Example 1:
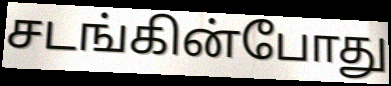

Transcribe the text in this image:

சடங்கின்போது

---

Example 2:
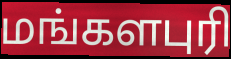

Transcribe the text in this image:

மங்களபுரி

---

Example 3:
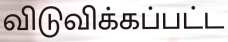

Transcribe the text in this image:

விடுவிக்கப்பட்ட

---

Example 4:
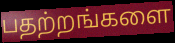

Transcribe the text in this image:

பதற்றங்களை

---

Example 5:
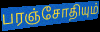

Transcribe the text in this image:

பரஞ்சோதியும்